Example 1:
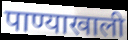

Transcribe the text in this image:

पाण्‍याखाली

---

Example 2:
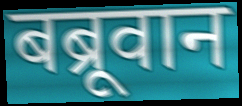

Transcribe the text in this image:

बब्रूवान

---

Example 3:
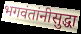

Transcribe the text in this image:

भगवंतांनीसुद्धा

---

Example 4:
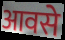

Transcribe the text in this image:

आवसे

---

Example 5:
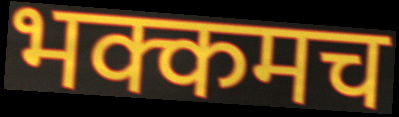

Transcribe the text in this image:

भक्कमच